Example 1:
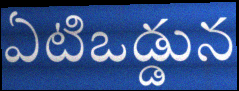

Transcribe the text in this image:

ఏటిఒడ్డున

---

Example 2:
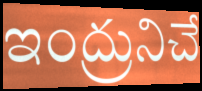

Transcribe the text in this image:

ఇంద్రునిచే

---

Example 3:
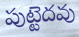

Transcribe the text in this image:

పుట్టెదవు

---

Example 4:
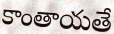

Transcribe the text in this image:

కాంతాయతే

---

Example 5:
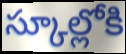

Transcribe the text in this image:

స్కూల్లోకి